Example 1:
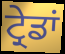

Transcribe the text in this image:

ਟ੍ਰੇਡਾਂ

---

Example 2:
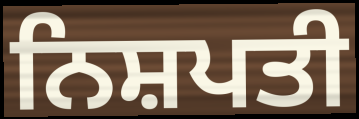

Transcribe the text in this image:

ਨਿਸ਼ਪਤੀ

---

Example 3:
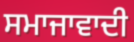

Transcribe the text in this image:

ਸਮਾਜਾਵਾਦੀ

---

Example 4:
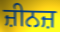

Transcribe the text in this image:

ਜ਼ੀਨਜ਼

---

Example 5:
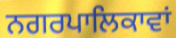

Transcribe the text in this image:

ਨਗਰਪਾਲਿਕਾਵਾਂ